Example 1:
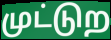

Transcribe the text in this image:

முட்டுற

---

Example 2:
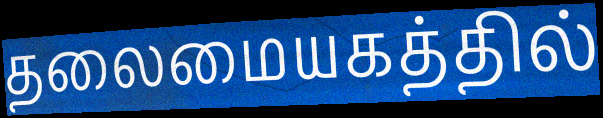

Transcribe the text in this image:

தலைமையகத்தில்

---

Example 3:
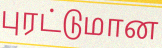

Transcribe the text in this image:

புரட்டுமான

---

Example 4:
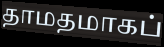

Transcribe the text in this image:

தாமதமாகப்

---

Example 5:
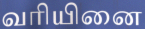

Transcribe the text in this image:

வரியினை